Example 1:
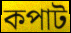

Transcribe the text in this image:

কপাট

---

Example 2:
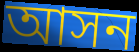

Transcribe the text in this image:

আসন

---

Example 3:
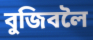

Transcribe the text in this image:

বুজিবলৈ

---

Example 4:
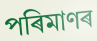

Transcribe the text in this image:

পৰিমাণৰ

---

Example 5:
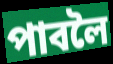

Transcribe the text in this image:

পাবলৈ